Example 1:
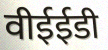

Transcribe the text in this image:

वीईईडी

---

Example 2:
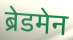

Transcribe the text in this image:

ब्रेडमेन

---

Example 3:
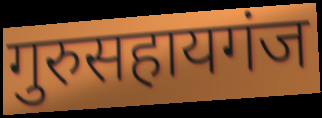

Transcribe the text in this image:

गुरुसहायगंज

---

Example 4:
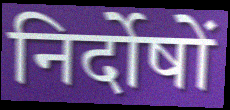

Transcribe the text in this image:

निर्दोषों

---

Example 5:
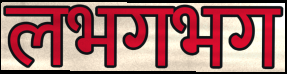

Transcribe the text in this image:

लभगभग